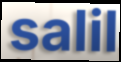
salil